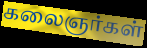
கலைஞர்கள்